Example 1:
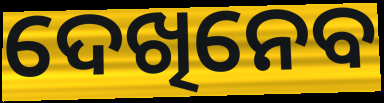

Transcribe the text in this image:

ଦେଖିନେବ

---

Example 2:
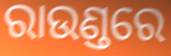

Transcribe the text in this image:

ରାଉଣ୍ଡରେ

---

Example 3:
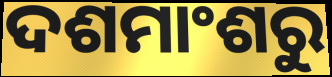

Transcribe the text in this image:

ଦଶମାଂଶରୁ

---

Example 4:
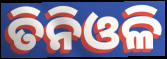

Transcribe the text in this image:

ତିନିଓଳି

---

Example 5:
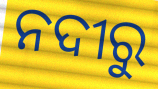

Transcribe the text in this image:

ନଦୀରୁ